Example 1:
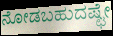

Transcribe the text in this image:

ನೋಡಬಹುದಷ್ಟೇ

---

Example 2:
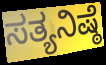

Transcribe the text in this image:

ಸತ್ಯನಿಷ್ಠೆ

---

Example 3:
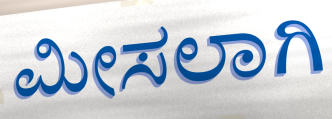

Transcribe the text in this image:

ಮೀಸಲಾಗಿ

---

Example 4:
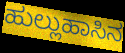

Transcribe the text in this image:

ಹುಲ್ಲುಹಾಸಿನ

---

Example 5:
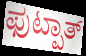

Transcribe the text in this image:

ಫುಟ್ಪಾತ್